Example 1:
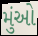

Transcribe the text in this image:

મુંઓ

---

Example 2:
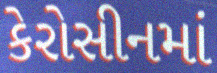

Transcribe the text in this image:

કેરોસીનમાં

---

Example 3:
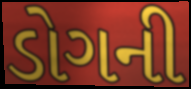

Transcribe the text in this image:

ડોગની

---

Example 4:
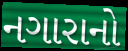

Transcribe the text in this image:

નગારાનો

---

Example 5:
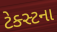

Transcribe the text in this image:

ટેક્સ્ટના